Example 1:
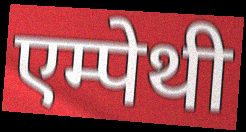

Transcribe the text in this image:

एम्पेथी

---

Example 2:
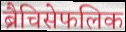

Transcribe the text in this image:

ब्रैचिसेफलिक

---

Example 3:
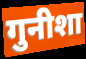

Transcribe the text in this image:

गुनीशा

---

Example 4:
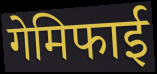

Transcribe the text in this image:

गेमिफाई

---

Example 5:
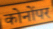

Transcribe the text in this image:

कोनोंपर